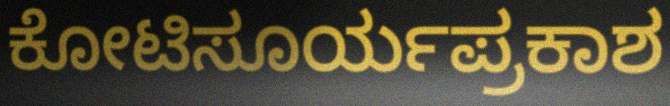
ಕೋಟಿಸೂರ್ಯಪ್ರಕಾಶ